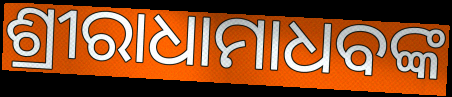
ଶ୍ରୀରାଧାମାଧବଙ୍କ